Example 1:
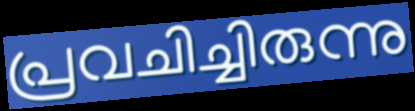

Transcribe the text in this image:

പ്രവചിച്ചിരുന്നു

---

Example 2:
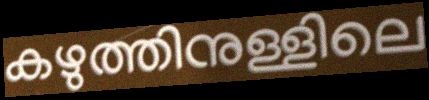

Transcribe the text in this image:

കഴുത്തിനുള്ളിലെ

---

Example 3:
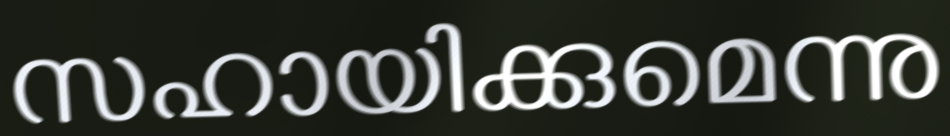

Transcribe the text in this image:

സഹായിക്കുമെന്നു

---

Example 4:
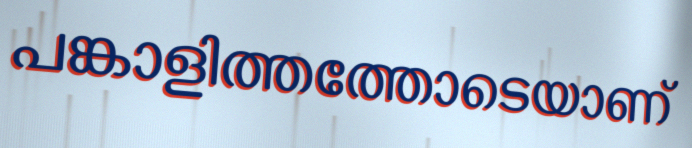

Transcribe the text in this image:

പങ്കാളിത്തത്തോടെയാണ്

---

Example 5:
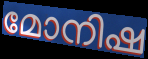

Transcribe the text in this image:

മോനിഷ